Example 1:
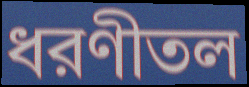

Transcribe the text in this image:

ধরণীতল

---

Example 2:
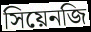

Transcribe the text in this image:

সিয়েনজি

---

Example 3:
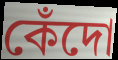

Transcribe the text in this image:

কেঁদো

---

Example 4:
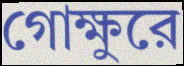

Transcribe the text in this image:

গোক্ষুরে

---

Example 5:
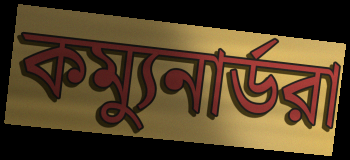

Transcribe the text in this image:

কম্যুনার্ডরা